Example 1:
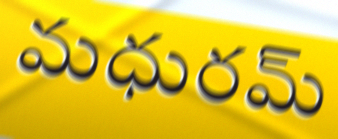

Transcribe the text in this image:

మధురమ్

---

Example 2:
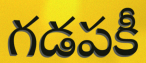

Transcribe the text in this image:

గడపకీ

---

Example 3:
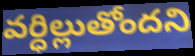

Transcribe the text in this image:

వర్ధిల్లుతోందని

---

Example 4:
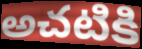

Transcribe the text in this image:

అచటికి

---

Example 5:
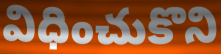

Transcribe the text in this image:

విధించుకొని